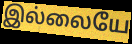
இல்லையே